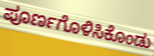
ಪೂರ್ಣಗೊಳಿಸಿಕೊಂಡು